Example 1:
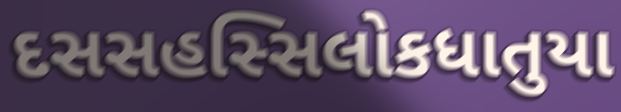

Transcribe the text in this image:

દસસહસ્સિલોકધાતુયા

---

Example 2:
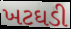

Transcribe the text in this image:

ખટઘડી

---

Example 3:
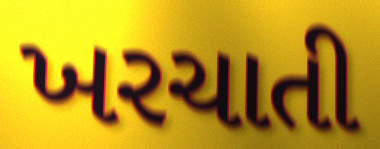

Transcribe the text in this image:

ખરચાતી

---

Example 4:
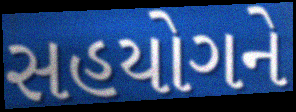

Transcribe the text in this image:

સહયોગને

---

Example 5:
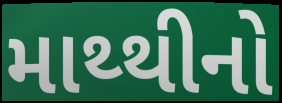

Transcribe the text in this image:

માથ્થીનો